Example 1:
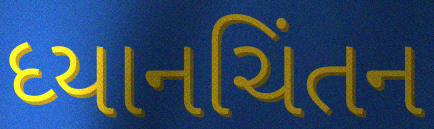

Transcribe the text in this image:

ધ્યાનચિંતન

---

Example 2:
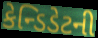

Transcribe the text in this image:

કેન્ડિડેટની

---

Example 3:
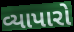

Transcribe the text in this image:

વ્યાપારો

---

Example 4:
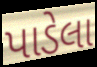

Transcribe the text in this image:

પાડેલા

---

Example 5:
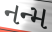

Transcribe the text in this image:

નન્મ